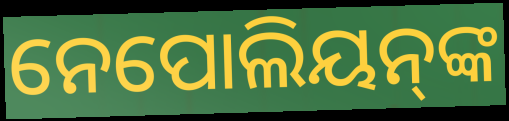
ନେପୋଲିୟନ୍‍ଙ୍କ